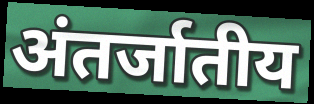
अंतर्जातीय